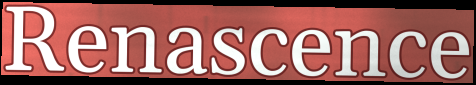
Renascence